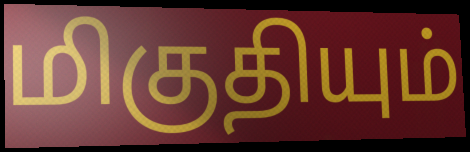
மிகுதியும்